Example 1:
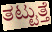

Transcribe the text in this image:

ತಟ್ಟುತ್ತೆ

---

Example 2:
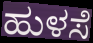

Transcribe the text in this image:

ಹುಳಸೆ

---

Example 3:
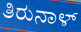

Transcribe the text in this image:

ತಿರುನಾಳ್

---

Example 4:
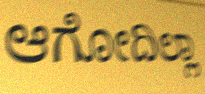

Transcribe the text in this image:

ಆಗೋದಿಲ್ಲಾ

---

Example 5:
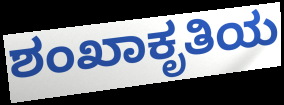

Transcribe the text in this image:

ಶಂಖಾಕೃತಿಯ